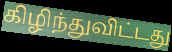
கிழிந்துவிட்டது